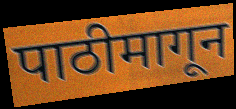
पाठीमागून